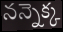
నన్నెక్క